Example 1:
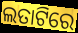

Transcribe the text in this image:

ଲତାଟିରେ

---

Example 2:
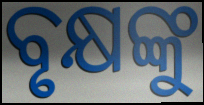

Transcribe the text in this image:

ବୃକ୍ଷଙ୍କୁ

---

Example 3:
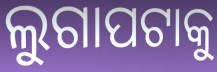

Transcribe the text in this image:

ଲୁଗାପଟାକୁ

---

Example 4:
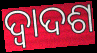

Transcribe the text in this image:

ଦ୍ଵାଦଶ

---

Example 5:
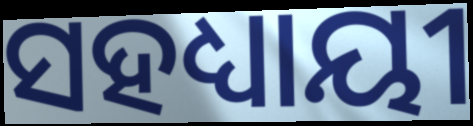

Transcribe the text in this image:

ସହଧ୍ୟାୟୀ